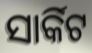
ସାର୍କିଟ